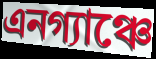
এনগ্যাঞ্চে